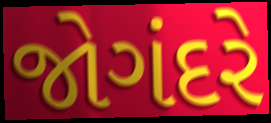
જોગંદરે